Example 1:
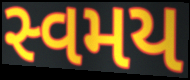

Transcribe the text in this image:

સ્વમય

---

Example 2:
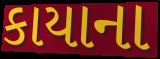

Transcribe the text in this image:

કાયાના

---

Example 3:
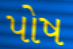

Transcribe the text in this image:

પોષ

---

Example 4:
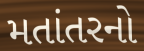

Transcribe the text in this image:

મતાંતરનો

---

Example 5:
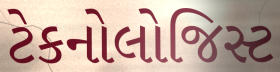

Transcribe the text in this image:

ટેકનોલોજિસ્ટ